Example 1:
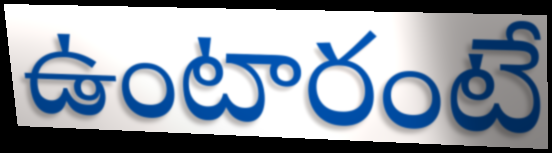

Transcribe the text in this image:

ఉంటారంటే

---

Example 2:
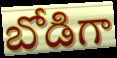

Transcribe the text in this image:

బోడిగా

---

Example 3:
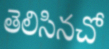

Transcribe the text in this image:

తెలిసినచో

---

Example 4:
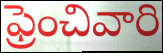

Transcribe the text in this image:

ఫ్రెంచివారి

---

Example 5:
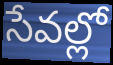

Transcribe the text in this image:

సేవల్లో